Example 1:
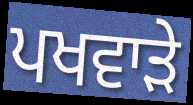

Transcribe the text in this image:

ਪਖਵਾੜੇ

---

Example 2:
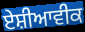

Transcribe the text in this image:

ਏਸ਼ੀਆਵੀਕ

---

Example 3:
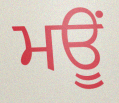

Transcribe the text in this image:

ਮਊਂ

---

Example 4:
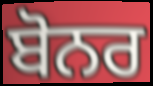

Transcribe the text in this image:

ਬੋਨਰ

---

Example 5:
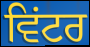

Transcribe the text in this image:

ਵਿਂਟਰ